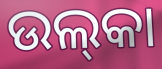
ଉଲ୍‌କା